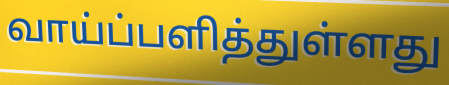
வாய்ப்பளித்துள்ளது